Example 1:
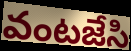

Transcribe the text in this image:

వంటజేసి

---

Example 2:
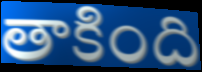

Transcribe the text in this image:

తాకింది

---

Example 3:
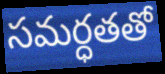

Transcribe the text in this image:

సమర్ధతతో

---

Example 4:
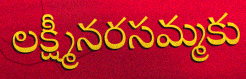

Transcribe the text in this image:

లక్ష్మీనరసమ్మకు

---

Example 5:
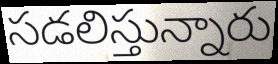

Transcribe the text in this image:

సడలిస్తున్నారు